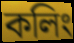
কলিং